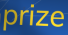
prize